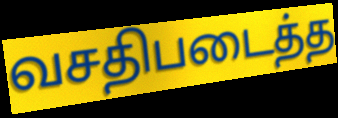
வசதிபடைத்த